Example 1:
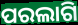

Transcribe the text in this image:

ପରଲାଗି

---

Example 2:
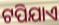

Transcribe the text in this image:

ଟପିଯାଏ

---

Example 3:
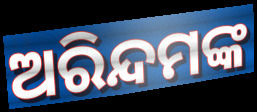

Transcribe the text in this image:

ଅରିନ୍ଦମଙ୍କ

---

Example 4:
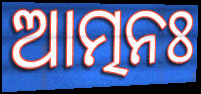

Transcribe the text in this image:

ଆତ୍ମନଃ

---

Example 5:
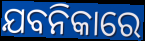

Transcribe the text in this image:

ଯବନିକାରେ